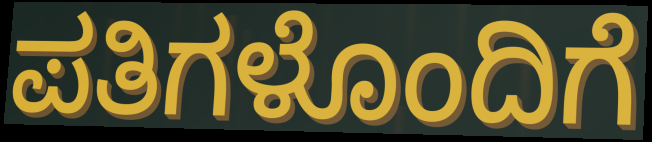
ಪತಿಗಳೊಂದಿಗೆ